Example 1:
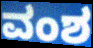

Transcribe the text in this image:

ವಂಶ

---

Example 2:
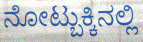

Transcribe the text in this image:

ನೋಟ್ಬುಕ್ಕಿನಲ್ಲಿ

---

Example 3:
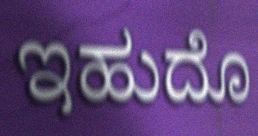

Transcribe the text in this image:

ಇಹುದೊ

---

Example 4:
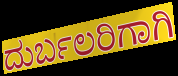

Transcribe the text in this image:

ದುರ್ಬಲರಿಗಾಗಿ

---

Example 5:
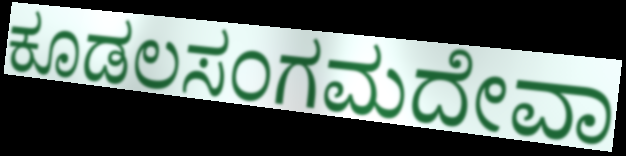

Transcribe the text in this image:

ಕೂಡಲಸಂಗಮದೇವಾ